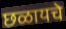
छळायचे